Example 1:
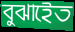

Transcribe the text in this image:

বুঝাইেত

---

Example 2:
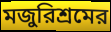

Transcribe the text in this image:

মজুরিশ্রমের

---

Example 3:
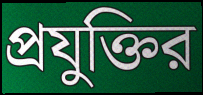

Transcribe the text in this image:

প্রযুক্তির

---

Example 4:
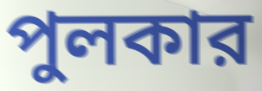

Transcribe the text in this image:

পুলকার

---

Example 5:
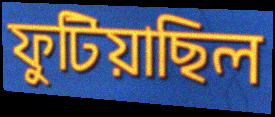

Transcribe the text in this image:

ফুটিয়াছিল